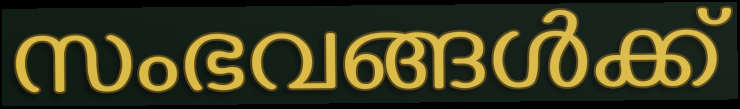
സംഭവങ്ങൾക്ക്